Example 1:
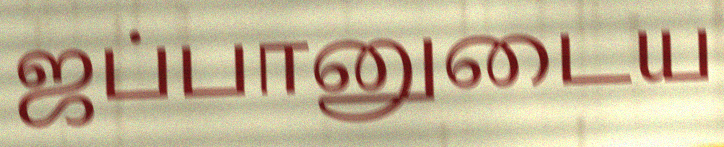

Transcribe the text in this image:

ஜப்பானுடைய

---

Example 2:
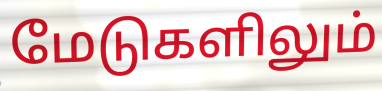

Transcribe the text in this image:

மேடுகளிலும்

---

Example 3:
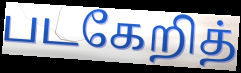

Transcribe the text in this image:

படகேறித்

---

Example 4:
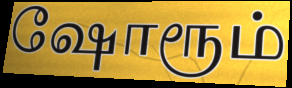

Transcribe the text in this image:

ஷோரூம்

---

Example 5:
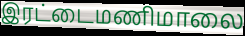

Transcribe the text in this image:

இரட்டைமணிமாலை